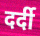
दर्दी